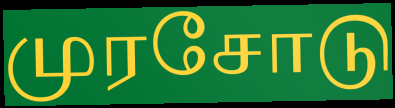
முரசோடு